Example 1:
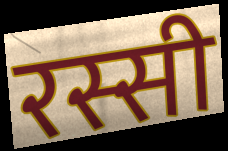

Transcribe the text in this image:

रस्सी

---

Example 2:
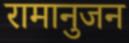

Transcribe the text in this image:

रामानुजन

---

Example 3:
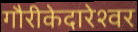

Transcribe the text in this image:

गौरीकेदारेश्वर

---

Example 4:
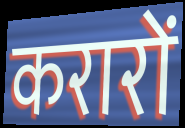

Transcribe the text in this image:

करारों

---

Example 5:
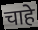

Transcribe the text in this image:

चाहे